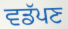
ਵਡੱਪਣ